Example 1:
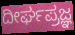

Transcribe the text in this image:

ದೀರ್ಘಪ್ರಜ್ಞ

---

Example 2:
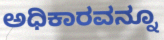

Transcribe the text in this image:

ಅಧಿಕಾರವನ್ನೂ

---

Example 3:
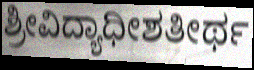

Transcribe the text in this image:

ಶ್ರೀವಿದ್ಯಾಧೀಶತೀರ್ಥ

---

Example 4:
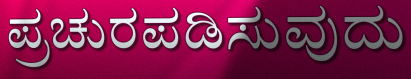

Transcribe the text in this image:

ಪ್ರಚುರಪಡಿಸುವುದು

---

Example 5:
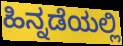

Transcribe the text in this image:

ಹಿನ್ನಡೆಯಲ್ಲಿ